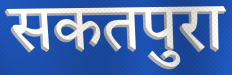
सकतपुरा